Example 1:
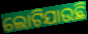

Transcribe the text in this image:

ଲୋଟିଯାଉଛି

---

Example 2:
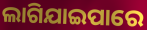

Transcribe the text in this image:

ଲାଗିଯାଇପାରେ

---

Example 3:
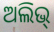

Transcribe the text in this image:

ଅଲିଭ୍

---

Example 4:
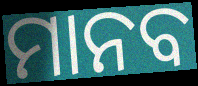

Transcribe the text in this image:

ମାନବ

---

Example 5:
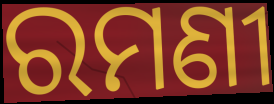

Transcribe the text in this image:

ରମଣୀ